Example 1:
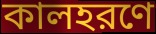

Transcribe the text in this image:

কালহরণে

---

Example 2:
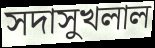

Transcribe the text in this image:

সদাসুখলাল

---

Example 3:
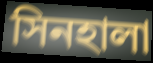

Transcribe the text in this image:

সিনহালা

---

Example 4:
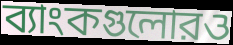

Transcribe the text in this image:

ব্যাংকগুলোরও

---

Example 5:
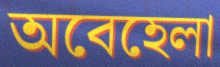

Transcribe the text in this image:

অবেহেলা